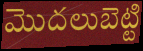
మొదలుబెట్టి